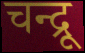
चन्द्रू